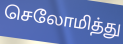
செலோமித்து